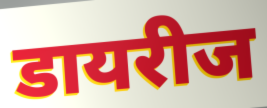
डायरीज